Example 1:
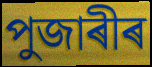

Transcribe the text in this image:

পুজাৰীৰ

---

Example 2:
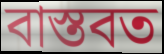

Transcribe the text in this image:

বাস্তবত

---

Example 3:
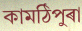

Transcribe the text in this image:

কামঠিপুৰা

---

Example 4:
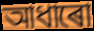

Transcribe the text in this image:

আধাৰো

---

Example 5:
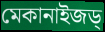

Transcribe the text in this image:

মেকানাইজড্